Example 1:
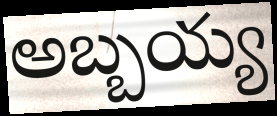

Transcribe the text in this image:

అబ్బయ్య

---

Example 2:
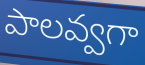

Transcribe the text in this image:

పాలవ్వగా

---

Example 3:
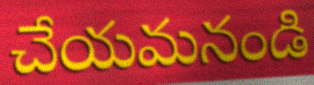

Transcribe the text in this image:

చేయమనండి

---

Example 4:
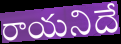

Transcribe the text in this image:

రాయనిదే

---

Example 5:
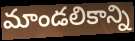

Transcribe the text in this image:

మాండలికాన్ని